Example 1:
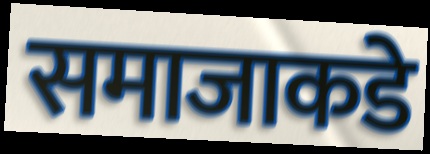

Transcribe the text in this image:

समाजाकडे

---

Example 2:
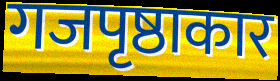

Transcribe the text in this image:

गजपृष्ठाकार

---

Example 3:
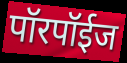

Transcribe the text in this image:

पॉरपॉईज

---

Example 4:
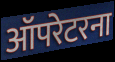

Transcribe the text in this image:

ऑपरेटरना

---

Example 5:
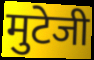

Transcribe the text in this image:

मुटेजी